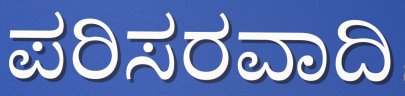
ಪರಿಸರವಾದಿ